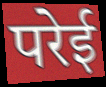
परेई